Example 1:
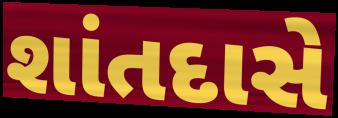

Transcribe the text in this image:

શાંતદાસે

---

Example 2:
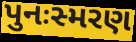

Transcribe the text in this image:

પુનઃસ્મરણ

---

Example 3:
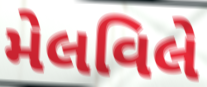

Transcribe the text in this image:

મેલવિલે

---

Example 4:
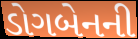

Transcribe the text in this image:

ડોગબેનની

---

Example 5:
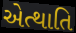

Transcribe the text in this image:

એત્થાતિ